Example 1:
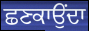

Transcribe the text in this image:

ਛਣਕਾਉਂਦਾ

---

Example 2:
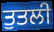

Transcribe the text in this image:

ਤੁਤਲੀ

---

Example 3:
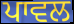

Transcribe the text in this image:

ਪਾਵਲ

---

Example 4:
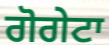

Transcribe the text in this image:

ਗੋਗੇਟਾ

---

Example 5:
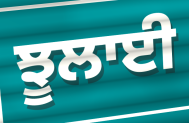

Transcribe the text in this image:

ਝੂਲਾਈ